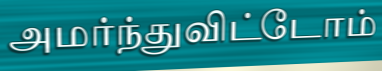
அமர்ந்துவிட்டோம்